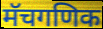
मॅचगणिक